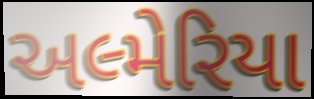
અલ્મેરિયા